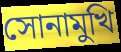
সোনামুখি